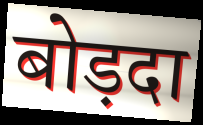
बोड़दा